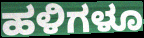
ಹಳಿಗಳೂ